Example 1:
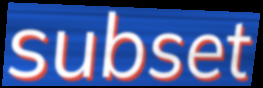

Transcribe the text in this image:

subset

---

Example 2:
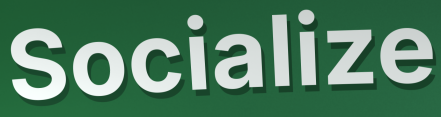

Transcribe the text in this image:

Socialize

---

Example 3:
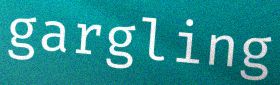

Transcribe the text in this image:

gargling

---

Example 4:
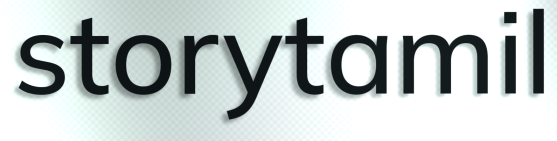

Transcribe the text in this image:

storytamil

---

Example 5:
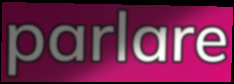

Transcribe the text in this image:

parlare